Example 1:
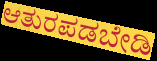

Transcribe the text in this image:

ಆತುರಪಡಬೇಡಿ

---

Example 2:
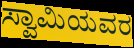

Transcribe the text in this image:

ಸ್ವಾಮಿಯವರ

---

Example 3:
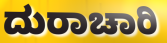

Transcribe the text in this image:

ದುರಾಚಾರಿ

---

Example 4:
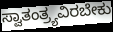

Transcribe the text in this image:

ಸ್ವಾತಂತ್ರ್ಯವಿರಬೇಕು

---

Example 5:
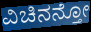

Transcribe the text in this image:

ವಿಚಿನನ್ತೋ